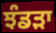
ਝੰਡੜਾ